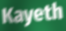
Kayeth